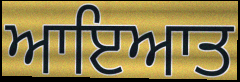
ਆਇਆਤ